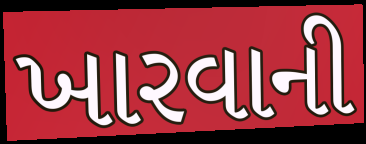
ખારવાની